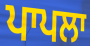
ਪਾਪਲਾ